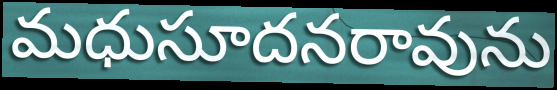
మధుసూదనరావును